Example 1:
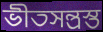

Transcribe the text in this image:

ভীতসন্ত্রস্ত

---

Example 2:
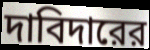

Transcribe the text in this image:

দাবিদারের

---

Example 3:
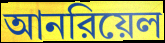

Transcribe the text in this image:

আনরিয়েল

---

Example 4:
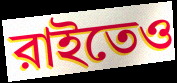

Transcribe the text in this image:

রাইতেও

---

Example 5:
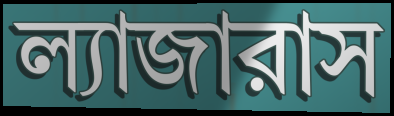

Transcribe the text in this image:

ল্যাজারাস